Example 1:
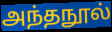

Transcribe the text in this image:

அந்தநூல்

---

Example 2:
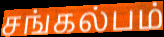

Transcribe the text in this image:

சங்கல்பம்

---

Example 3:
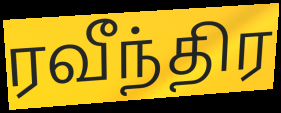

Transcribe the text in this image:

ரவீந்திர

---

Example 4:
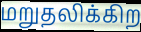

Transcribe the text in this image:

மறுதலிக்கிற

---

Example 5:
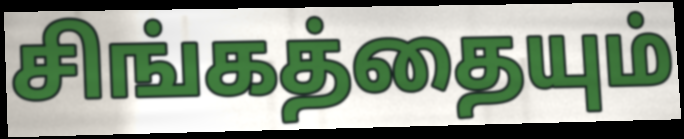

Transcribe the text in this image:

சிங்கத்தையும்